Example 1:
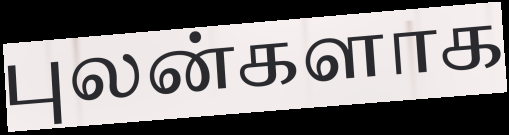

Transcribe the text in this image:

புலன்களாக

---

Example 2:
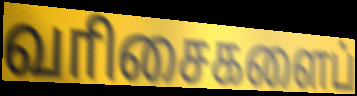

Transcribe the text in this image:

வரிசைகளைப்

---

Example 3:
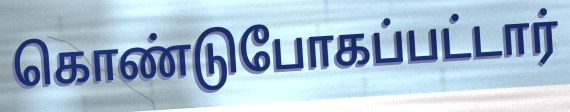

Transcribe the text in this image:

கொண்டுபோகப்பட்டார்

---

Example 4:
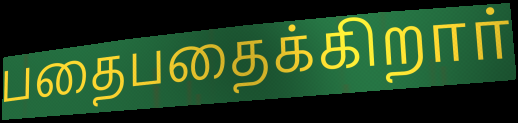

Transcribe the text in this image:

பதைபதைக்கிறார்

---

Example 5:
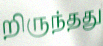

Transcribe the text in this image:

றிருந்தது